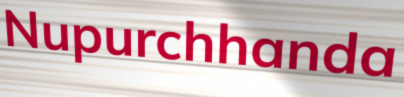
Nupurchhanda